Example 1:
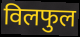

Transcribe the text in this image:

विलफुल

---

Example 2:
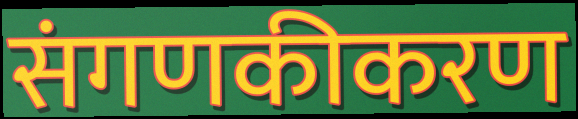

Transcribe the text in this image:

संगणकीकरण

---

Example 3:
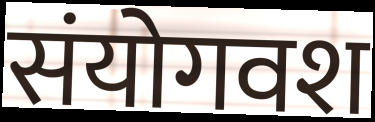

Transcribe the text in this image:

संयोगवश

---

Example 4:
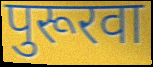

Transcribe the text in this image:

पुरूरवा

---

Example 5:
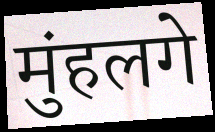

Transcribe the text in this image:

मुंहलगे